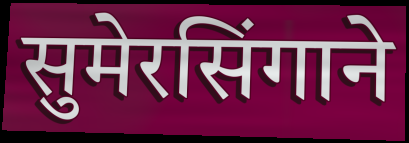
सुमेरसिंगाने